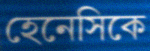
হেনেসিকে